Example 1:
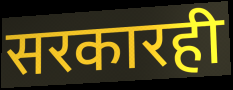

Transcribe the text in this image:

सरकारही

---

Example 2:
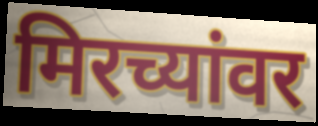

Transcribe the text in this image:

मिरच्यांवर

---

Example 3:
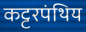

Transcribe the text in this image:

कट्टरपंथिय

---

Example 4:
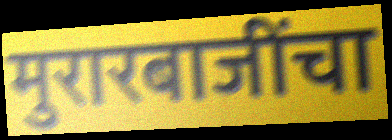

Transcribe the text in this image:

मुरारबाजींचा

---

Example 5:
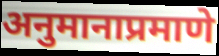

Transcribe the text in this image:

अनुमानाप्रमाणे